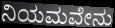
ನಿಯಮವೇನು